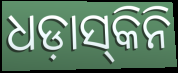
ଧଡ଼ାସ୍‌କିନି